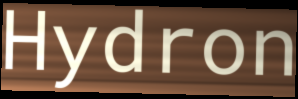
Hydron